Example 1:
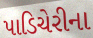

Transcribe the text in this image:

પાડિચેરીના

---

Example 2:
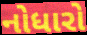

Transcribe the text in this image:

નોધારો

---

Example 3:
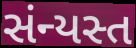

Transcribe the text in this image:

સંન્યસ્ત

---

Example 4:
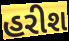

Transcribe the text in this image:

હરીશ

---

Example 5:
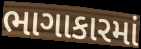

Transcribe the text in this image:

ભાગાકારમાં